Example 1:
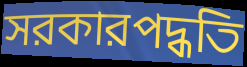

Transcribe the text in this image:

সরকারপদ্ধতি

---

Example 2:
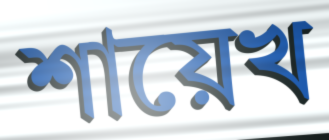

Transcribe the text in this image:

শায়েখ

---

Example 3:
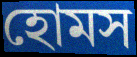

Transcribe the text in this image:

হোমস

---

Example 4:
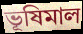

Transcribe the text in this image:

ভূষিমাল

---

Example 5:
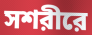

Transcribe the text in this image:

সশরীরে